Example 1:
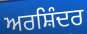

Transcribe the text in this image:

ਅਰਸ਼ਿੰਦਰ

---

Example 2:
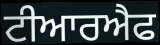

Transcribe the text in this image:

ਟੀਆਰਐਫ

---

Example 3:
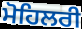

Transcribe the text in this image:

ਮੋਹਿਲਰੀ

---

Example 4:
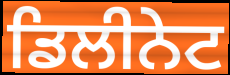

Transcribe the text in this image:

ਡਿਲੀਨੇਟ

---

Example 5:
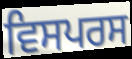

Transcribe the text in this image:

ਵਿਸਪਰਸ